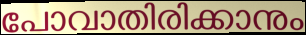
പോവാതിരിക്കാനും